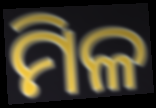
ମିଳ